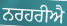
ਨਰਹਰੀਐ